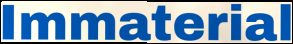
Immaterial